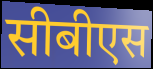
सीबीएस